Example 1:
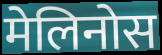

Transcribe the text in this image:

मेलिनोस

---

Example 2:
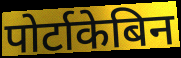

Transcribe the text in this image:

पोर्टाकेबिन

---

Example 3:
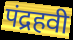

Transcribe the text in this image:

पंद्रहवी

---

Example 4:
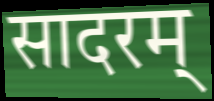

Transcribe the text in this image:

सादरम्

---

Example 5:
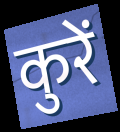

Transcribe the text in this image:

कुरें